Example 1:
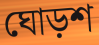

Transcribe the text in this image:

ঘোড়শ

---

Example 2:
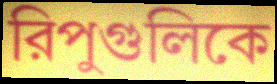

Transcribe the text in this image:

রিপুগুলিকে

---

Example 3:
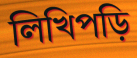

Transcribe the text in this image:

লিখিপড়ি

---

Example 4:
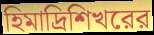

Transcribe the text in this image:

হিমাদ্রিশিখরের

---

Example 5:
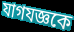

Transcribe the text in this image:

যাগযজ্ঞকে